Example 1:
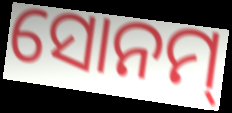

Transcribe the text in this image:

ସୋନମ୍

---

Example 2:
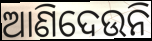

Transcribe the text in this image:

ଆଣିଦେଉନି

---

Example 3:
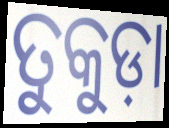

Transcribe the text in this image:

ତୁକୁଡ଼ା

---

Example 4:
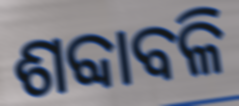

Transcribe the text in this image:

ଶବ୍ଦାବଳି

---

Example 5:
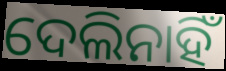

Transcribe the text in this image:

ଦେଲିନାହିଁ